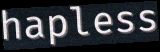
hapless